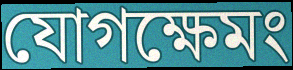
যোগক্ষেমং